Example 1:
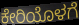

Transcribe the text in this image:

ಕೇರಿಯೊಳಗೆ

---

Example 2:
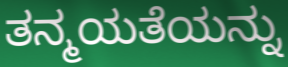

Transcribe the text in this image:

ತನ್ಮಯತೆಯನ್ನು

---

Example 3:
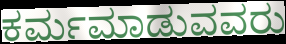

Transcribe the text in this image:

ಕರ್ಮಮಾಡುವವರು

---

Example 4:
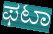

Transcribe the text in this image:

ಫಟಾ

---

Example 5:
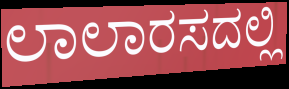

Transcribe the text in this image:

ಲಾಲಾರಸದಲ್ಲಿ